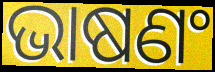
ଭାଷଣଂ